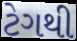
ટેગથી